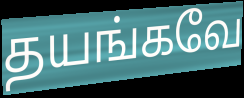
தயங்கவே